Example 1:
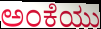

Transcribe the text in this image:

ಅಂಕೆಯು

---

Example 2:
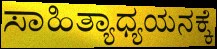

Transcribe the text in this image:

ಸಾಹಿತ್ಯಾಧ್ಯಯನಕ್ಕೆ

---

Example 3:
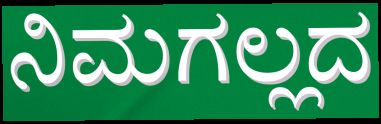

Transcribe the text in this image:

ನಿಮಗಲ್ಲದ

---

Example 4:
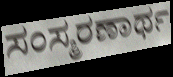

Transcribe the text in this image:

ಸಂಸ್ಮರಣಾರ್ಥ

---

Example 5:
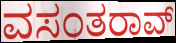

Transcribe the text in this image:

ವಸಂತರಾವ್